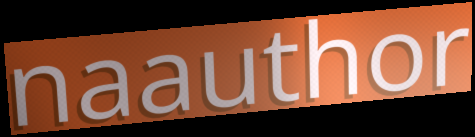
naauthor